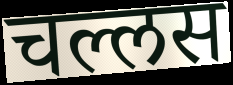
चल्लस